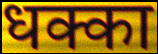
धक्का